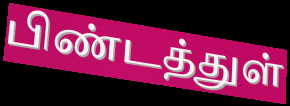
பிண்டத்துள்